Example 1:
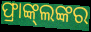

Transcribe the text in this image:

ଫ୍ରାଙ୍କ୍‌ଲଙ୍କର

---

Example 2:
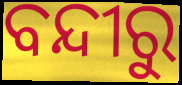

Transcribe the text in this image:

ବନ୍ଦୀରୁ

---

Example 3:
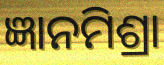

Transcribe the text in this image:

ଜ୍ଞାନମିଶ୍ରା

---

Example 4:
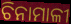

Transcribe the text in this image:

ଚିନାମାଳୀ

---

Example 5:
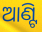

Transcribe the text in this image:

ଆଣ୍ଟି